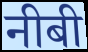
नीबी